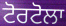
ਟੋਰਟੋਲਾ